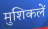
मुशिकलें